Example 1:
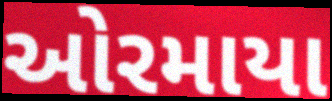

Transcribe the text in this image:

ઓરમાયા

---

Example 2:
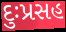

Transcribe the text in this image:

દુઃપ્રસહ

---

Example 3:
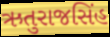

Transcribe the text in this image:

ઋતુરાજસિંહ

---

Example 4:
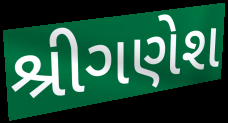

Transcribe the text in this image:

શ્રીગણેશ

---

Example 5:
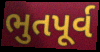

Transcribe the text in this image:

ભુતપૂર્વ